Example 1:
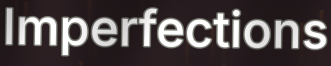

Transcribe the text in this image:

Imperfections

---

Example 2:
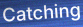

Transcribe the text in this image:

Catching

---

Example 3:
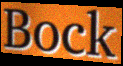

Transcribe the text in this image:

Bock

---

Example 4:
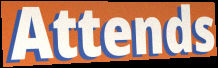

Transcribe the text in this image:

Attends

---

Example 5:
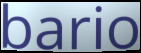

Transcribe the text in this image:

bario